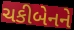
ચકીબેનને